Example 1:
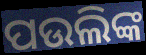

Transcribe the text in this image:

ପଉଲିଙ୍କ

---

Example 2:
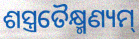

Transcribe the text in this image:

ଶସ୍ତ୍ରତୈକ୍ଷ୍ମଣ୍ୟମ୍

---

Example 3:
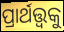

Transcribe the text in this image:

ପ୍ରାର୍ଥତ୍ତ୍ୱକୁ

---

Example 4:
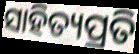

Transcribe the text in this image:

ସାହିତ୍ୟପ୍ରତି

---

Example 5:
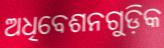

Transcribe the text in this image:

ଅଧିବେଶନଗୁଡ଼ିକ